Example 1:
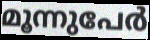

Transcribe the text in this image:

മൂന്നുപേർ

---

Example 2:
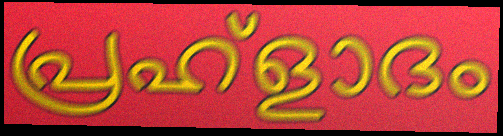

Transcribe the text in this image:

പ്രഹ്ളാദം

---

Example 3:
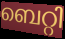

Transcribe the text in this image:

ബെറ്റി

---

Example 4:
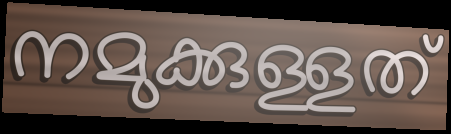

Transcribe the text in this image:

നമുക്കുള്ളത്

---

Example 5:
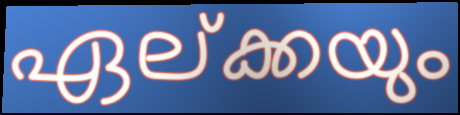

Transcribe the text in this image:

ഏല്ക്കയും